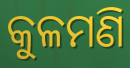
କୁଳମଣି